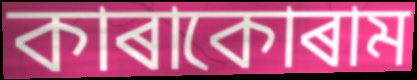
কাৰাকোৰাম